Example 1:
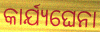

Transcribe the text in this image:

କାର୍ଯ୍ୟଘେନା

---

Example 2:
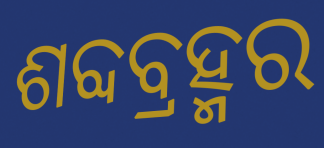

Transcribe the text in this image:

ଶବ୍ଦବ୍ରହ୍ମର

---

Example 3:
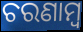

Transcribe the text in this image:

ଚରଣାମ୍ବ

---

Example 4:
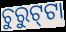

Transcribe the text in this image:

ଚୁରୁଟ୍‍ଟା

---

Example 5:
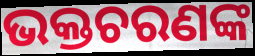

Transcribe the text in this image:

ଭକ୍ତଚରଣଙ୍କ